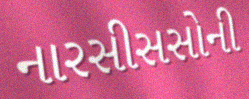
નારસીસસોની